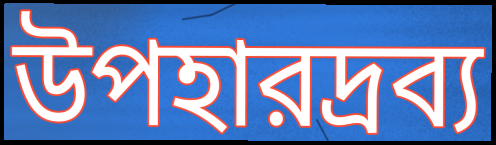
উপহারদ্রব্য